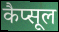
कैप्सूल